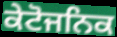
ਕੇਟੋਜਨਿਕ